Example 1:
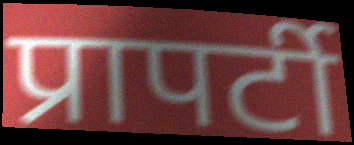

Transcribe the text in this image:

प्रापर्टी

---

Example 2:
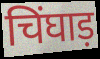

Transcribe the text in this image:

चिंघाड़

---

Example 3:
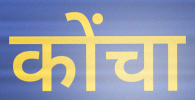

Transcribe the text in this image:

कोंचा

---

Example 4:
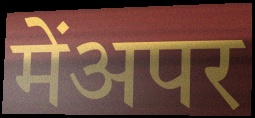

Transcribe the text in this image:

मेंअपर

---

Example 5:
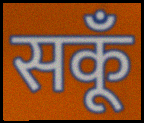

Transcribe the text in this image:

सकूँ